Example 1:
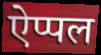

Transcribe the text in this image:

ऐप्पल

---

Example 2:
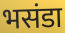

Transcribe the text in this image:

भसंडा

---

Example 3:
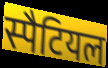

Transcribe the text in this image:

स्पैटियल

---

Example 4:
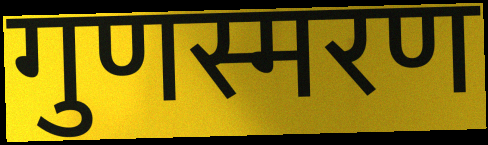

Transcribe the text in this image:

गुणस्मरण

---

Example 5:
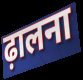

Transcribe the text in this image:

ढ़ालना